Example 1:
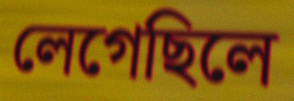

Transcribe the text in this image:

লেগেছিলে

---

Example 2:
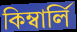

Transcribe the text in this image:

কিম্বার্লি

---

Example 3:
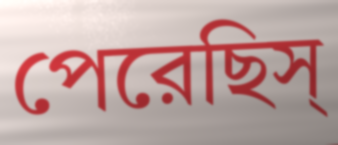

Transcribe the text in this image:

পেরেছিস্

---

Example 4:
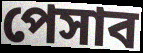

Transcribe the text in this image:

পেসাব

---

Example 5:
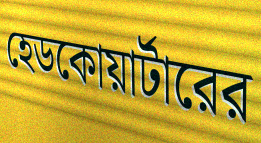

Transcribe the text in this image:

হেডকোয়ার্টারের